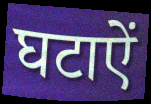
घटाऐं